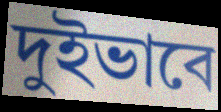
দুইভাবে